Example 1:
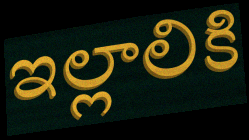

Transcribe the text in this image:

ఇల్లాలికి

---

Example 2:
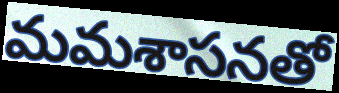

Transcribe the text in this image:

మమశాసనతో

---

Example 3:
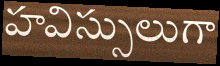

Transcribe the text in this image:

హవిస్సులుగా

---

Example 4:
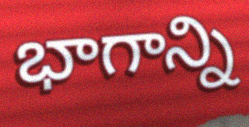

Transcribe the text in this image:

భాగాన్ని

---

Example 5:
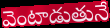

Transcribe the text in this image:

వెంటాడుతునే